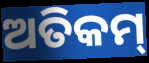
ଅତିକମ୍